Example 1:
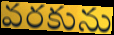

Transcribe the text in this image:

వరకును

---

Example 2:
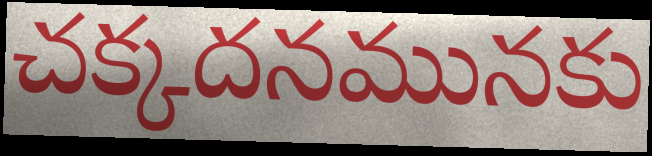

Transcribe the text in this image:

చక్కదనమునకు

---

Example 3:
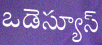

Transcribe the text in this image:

ఒడెస్యూస్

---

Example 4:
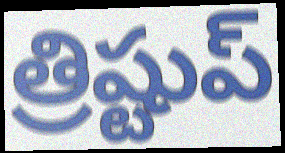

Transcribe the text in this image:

త్రిష్టుప్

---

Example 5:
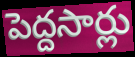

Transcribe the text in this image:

పెద్దసార్లు